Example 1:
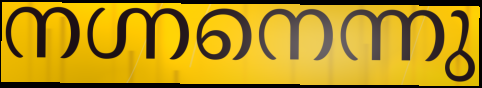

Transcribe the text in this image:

നഗ്നനെന്നു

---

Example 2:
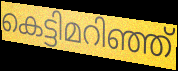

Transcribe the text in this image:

കെട്ടിമറിഞ്ഞ്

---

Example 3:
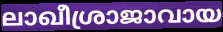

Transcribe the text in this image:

ലാഖീശ്രാജാവായ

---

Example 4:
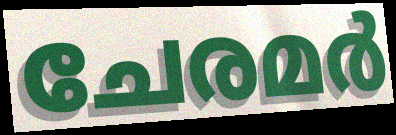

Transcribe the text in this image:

ചേരമർ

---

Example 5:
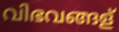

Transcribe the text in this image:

വിഭവങ്ങള്